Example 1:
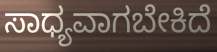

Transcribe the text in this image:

ಸಾಧ್ಯವಾಗಬೇಕಿದೆ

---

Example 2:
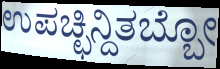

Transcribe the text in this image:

ಉಪಚ್ಛಿನ್ದಿತಬ್ಬೋ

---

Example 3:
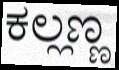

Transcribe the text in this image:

ಕಲ್ಲಣ್ಣ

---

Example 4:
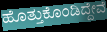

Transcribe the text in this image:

ಹೊತ್ತುಕೊಂಡಿದ್ದೇವೆ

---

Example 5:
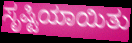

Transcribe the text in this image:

ಸೃಷ್ಟಿಯಾಯಿತು